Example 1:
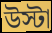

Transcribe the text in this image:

উস্টা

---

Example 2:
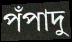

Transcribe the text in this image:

পঁপাদু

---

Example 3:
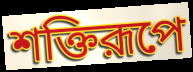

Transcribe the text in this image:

শক্তিরূপে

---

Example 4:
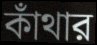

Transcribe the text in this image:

কাঁথার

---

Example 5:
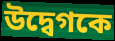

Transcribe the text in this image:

উদ্বেগকে